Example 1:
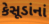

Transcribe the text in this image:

કેસૂડાંનાં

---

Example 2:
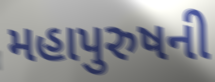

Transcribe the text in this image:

મહાપુરુષની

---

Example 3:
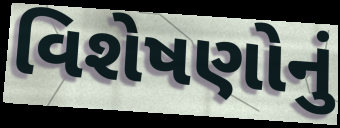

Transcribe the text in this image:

વિશેષણોનું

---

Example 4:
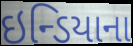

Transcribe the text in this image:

ઇન્ડિયાના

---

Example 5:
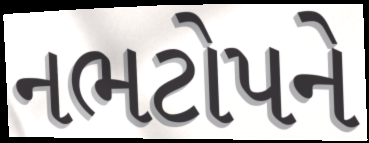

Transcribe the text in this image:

નભટોપને